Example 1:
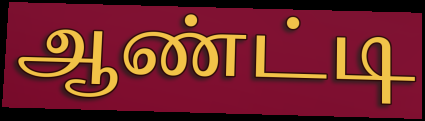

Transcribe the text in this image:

ஆண்ட்டி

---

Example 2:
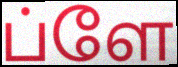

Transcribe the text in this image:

ப்ளே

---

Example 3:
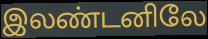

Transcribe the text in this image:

இலண்டனிலே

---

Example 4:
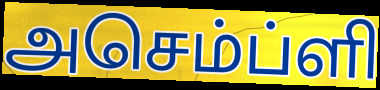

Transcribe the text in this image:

அசெம்ப்ளி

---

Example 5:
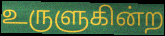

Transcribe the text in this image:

உருளுகின்ற